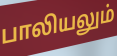
பாலியலும்